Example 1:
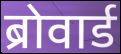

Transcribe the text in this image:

ब्रोवार्ड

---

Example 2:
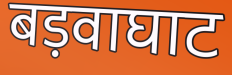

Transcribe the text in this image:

बड़वाघाट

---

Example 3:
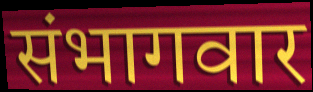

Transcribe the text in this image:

संभागवार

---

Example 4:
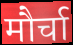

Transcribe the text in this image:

मौर्चा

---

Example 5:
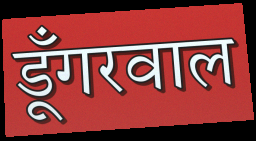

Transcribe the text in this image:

डूँगरवाल